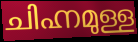
ചിഹ്നമുള്ള